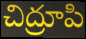
చిద్రూపి